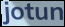
jotun